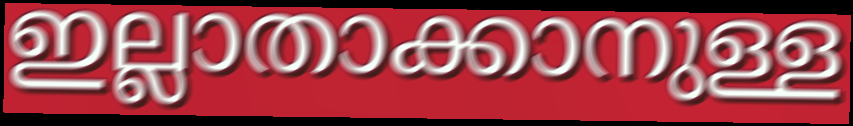
ഇല്ലാതാക്കാനുള്ള